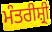
ਮੰਤਰੀਸ਼੍ਰੀ